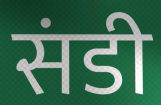
संडी